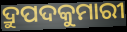
ଦ୍ରୁପଦକୁମାରୀ